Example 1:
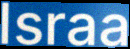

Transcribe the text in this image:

Israa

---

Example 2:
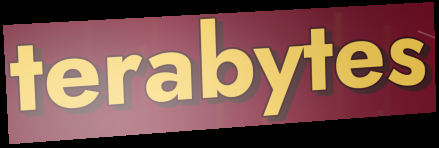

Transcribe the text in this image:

terabytes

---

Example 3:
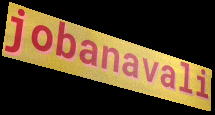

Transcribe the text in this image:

jobanavali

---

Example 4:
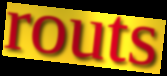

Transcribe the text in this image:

routs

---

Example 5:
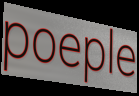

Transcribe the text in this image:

poeple